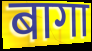
बागा